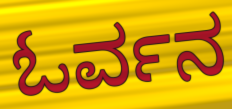
ಓರ್ವನ